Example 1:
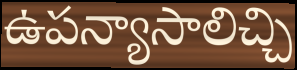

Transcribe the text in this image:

ఉపన్యాసాలిచ్చి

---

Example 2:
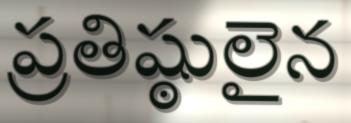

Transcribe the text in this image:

ప్రతిష్ఠులైన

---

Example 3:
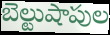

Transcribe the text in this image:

బెల్టుషాపుల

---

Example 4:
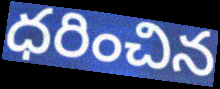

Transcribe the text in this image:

ధరించిన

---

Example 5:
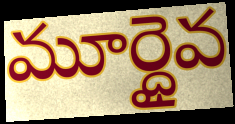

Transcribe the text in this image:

మూర్ధైవ